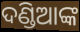
ଦଣ୍ଡିଆଙ୍କ